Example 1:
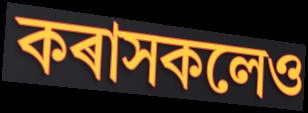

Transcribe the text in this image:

কৰাসকলেও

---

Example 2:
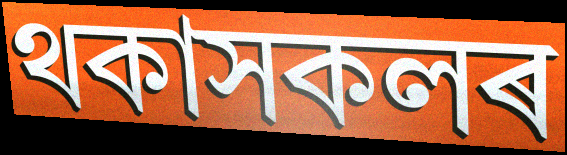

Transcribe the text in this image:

থকাসকলৰ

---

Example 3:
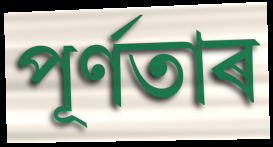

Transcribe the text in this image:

পূৰ্ণতাৰ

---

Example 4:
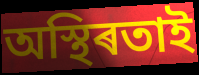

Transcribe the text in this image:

অস্থিৰতাই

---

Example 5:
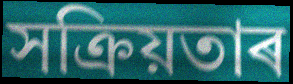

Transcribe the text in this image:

সক্ৰিয়তাৰ